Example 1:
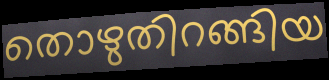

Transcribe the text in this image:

തൊഴുതിറങ്ങിയ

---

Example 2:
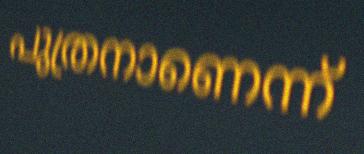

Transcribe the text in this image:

പുത്രനാണെന്ന്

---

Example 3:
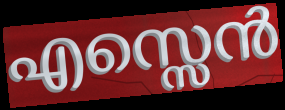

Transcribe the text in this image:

എസ്സെൻ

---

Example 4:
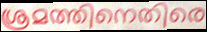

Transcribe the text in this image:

ശ്രമത്തിനെതിരെ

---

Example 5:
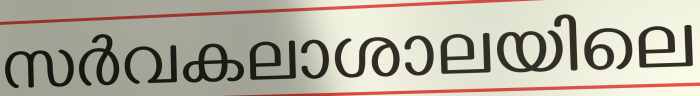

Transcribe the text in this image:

സർവകലാശാലയിലെ